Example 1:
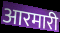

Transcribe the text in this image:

आरमारी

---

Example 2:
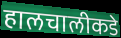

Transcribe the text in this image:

हालचालीकडे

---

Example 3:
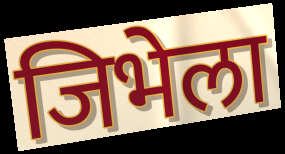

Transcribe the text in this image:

जिभेला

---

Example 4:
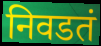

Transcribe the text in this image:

निवडतं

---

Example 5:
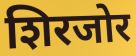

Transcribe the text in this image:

शिरजोर